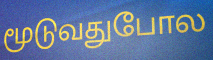
மூடுவதுபோல